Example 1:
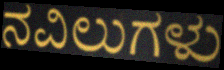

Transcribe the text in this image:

ನವಿಲುಗಳು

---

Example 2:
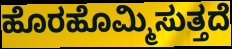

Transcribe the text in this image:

ಹೊರಹೊಮ್ಮಿಸುತ್ತದೆ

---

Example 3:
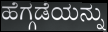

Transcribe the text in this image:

ಹೆಗ್ಗಡೆಯನ್ನು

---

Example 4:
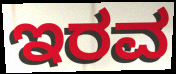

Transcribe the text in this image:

ಇರವ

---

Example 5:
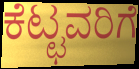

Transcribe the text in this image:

ಕೆಟ್ಟವರಿಗೆ